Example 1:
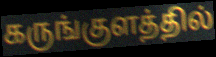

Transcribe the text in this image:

கருங்குளத்தில்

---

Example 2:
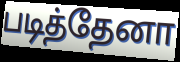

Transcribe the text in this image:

படித்தேனா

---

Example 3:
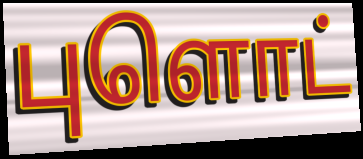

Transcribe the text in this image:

புளொட்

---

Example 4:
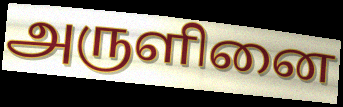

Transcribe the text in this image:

அருளினை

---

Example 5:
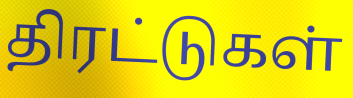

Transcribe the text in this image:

திரட்டுகள்